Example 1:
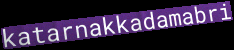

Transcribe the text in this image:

katarnakkadamabri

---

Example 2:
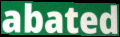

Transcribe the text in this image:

abated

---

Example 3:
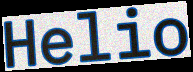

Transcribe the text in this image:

Helio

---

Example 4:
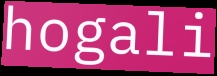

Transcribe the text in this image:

hogali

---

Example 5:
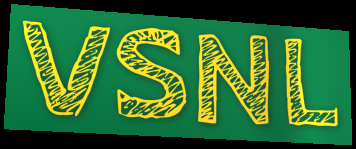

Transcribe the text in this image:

VSNL